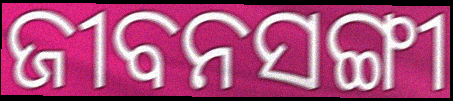
ଜୀବନସଙ୍ଗୀ